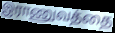
இராணுவத்தை